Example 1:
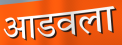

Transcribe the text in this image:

आडवला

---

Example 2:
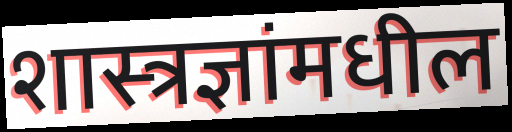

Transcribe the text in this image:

शास्त्रज्ञांमधील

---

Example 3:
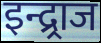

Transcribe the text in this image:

इन्द्र्राज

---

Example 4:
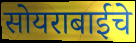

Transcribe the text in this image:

सोयराबाईचे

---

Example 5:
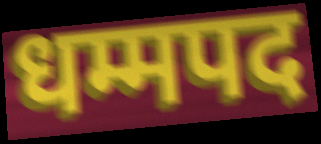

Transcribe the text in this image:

धम्मपद